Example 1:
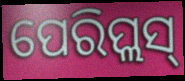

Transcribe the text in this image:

ପେରିପ୍ଲସ୍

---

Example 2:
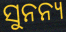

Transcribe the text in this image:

ସୁନନ୍ୟ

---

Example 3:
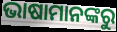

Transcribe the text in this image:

ଭାଷାମାନଙ୍କରୁ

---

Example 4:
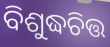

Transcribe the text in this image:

ବିଶୁଦ୍ଧଚିତ୍ତ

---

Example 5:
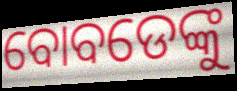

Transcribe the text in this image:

ବୋବଡେଙ୍କୁ